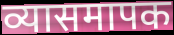
व्यासमापक